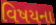
વિષયના